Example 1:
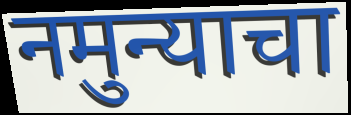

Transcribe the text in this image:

नमुन्याचा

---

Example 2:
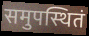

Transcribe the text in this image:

समुपस्थितं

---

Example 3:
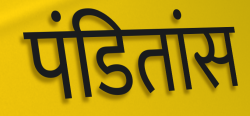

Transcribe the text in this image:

पंडितांस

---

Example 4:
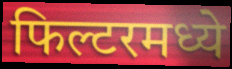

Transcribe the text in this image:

फिल्टरमध्ये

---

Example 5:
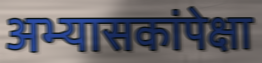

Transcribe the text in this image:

अभ्यासकांपेक्षा